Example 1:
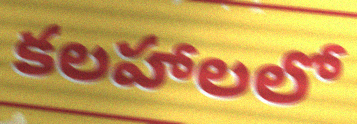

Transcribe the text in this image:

కలహాలలో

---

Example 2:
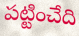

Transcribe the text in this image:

పట్టించేది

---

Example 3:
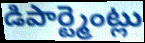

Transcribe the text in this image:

డిపార్ట్మెంట్లు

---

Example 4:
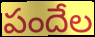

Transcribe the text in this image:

పందేల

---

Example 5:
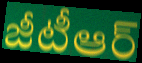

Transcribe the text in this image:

జీటీఆర్